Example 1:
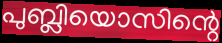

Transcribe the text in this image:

പുബ്ലിയൊസിന്റെ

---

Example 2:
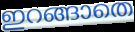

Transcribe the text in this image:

ഇറങ്ങാതെ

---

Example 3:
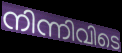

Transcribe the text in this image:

നിന്നിവിടെ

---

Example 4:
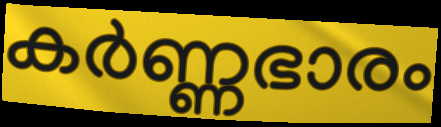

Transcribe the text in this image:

കർണ്ണഭാരം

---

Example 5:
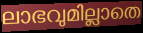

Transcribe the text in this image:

ലാഭവുമില്ലാതെ